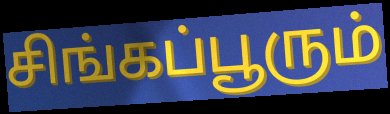
சிங்கப்பூரும்